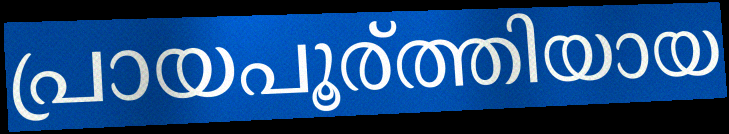
പ്രായപൂര്ത്തിയായ